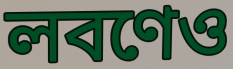
লবণেও